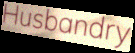
Husbandry